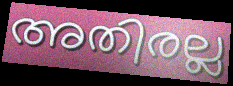
അതിരല്ല